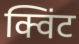
क्विंट